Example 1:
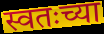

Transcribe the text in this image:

स्वतःच्या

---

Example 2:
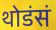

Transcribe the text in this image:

थोडंसं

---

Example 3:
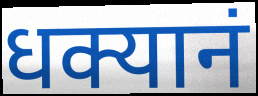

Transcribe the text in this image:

धक्यानं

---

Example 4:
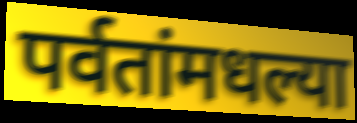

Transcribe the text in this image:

पर्वतांमधल्या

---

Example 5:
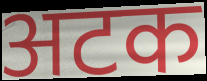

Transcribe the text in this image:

अटक